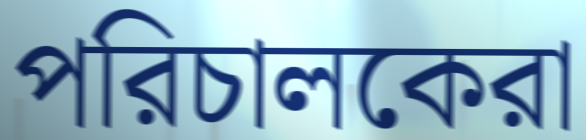
পরিচালকেরা